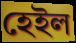
হেইল